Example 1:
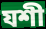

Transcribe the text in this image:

যশী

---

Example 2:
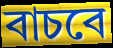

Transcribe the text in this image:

বাচবে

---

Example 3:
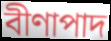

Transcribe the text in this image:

বীণাপাদ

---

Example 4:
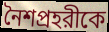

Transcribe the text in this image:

নৈশপ্রহরীকে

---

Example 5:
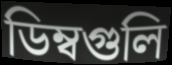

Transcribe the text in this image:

ডিম্বগুলি